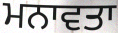
ਮਨਾਵਤਾ